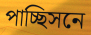
পাচ্ছিসনে